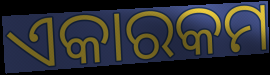
ଏକାରକମ